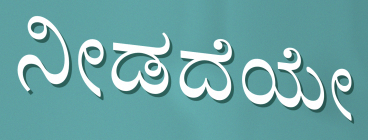
ನೀಡದೆಯೇ